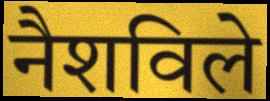
नैशविले